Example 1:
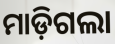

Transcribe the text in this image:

ମାଡ଼ିଗଲା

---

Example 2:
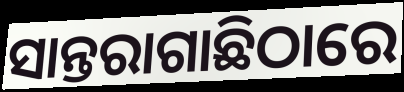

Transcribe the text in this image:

ସାନ୍ତରାଗାଛିଠାରେ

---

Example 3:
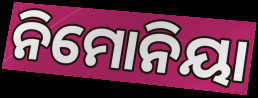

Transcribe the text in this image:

ନିମୋନିୟା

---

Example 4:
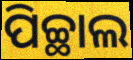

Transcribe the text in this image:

ପିଚ୍ଛାଲ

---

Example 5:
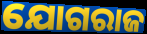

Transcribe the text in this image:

ଯୋଗରାଜ